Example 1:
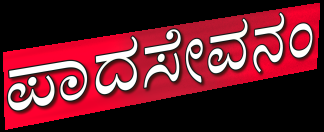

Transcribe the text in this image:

ಪಾದಸೇವನಂ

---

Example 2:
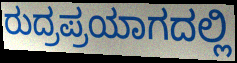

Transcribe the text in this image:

ರುದ್ರಪ್ರಯಾಗದಲ್ಲಿ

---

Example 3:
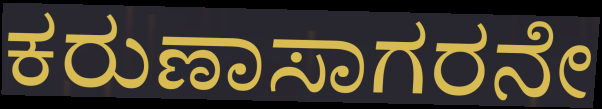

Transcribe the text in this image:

ಕರುಣಾಸಾಗರನೇ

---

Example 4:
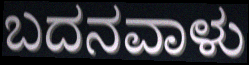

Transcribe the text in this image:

ಬದನವಾಳು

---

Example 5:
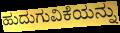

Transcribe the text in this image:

ಹುದುಗುವಿಕೆಯನ್ನು